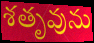
శతృవును